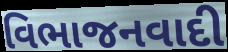
વિભાજનવાદી